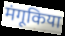
मंगूकिया